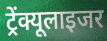
ट्रेंक्यूलाइजर